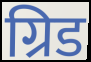
ग्रिड